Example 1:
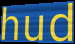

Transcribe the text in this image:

hud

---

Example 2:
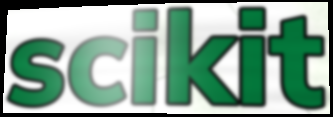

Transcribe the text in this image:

scikit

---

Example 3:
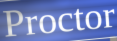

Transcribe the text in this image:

Proctor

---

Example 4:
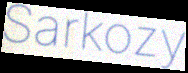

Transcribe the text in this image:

Sarkozy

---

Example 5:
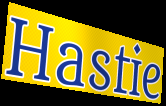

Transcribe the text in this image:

Hastie